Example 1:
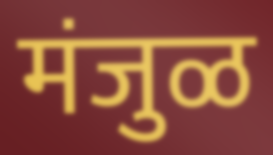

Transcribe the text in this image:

मंजुळ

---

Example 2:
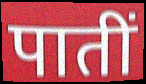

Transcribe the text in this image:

पातीं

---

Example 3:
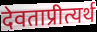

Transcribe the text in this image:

देवताप्रीत्यर्थ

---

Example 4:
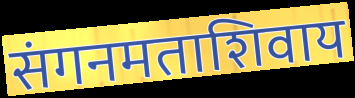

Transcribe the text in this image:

संगनमताशिवाय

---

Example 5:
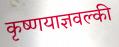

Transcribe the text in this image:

कृष्णयाज्ञवल्की